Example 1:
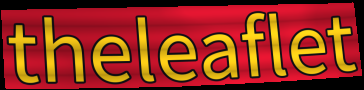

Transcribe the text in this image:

theleaflet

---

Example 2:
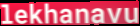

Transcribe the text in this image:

lekhanavu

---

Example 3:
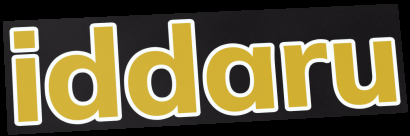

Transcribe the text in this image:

iddaru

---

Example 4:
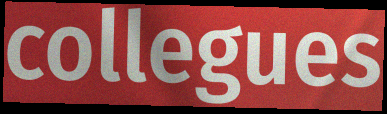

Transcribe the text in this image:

collegues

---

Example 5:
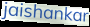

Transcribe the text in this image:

jaishankar